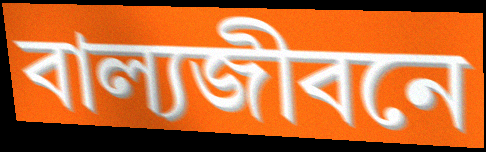
বাল্যজীবনে